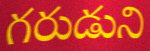
గరుడుని